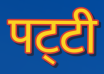
पट्‌टी